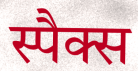
स्पैक्स